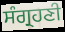
ਸੰਗ੍ਰਹਣੀ